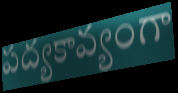
పద్యకావ్యంగా